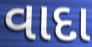
વાદા